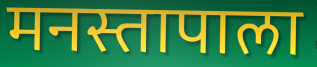
मनस्तापाला